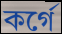
কর্গে